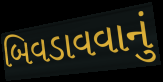
બિવડાવવાનું